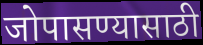
जोपासण्यासाठी